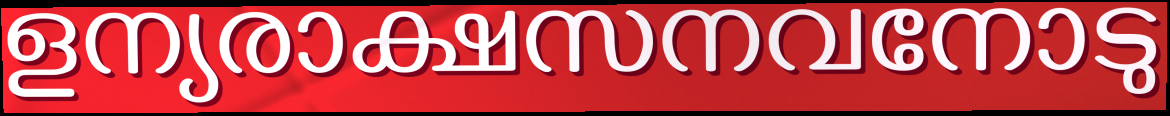
ളന്യരാക്ഷസനവനോടു